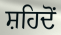
ਸ਼ਹਿਦੋਂ